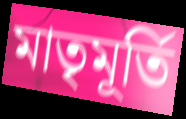
মাতৃমূর্তি